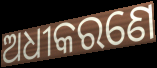
ଅଧୀକରଣେ